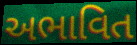
અભાવિત